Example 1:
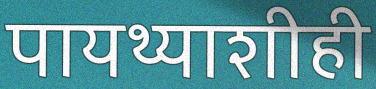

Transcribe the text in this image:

पायथ्याशीही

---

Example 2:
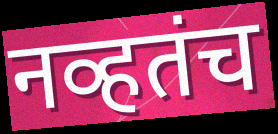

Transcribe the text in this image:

नव्हतंच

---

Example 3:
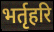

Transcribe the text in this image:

भर्तृहरि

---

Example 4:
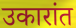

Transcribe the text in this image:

उकारांत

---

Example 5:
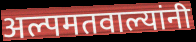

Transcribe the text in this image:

अल्पमतवाल्यांनी